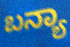
ಬನ್ಯಾ